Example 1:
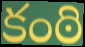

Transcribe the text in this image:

కంఠి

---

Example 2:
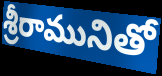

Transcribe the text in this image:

శ్రీరామునితో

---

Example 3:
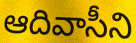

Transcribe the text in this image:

ఆదివాసీని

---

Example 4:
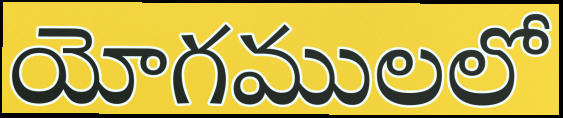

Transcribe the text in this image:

యోగములలో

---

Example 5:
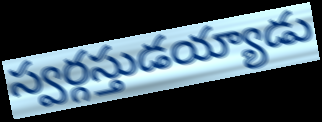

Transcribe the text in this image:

స్వర్గస్తుడయ్యాడు